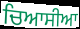
ਚਿਆਸੀਆ